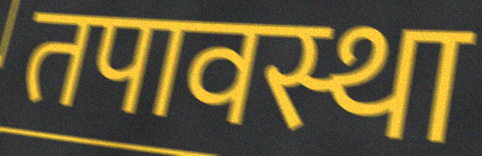
तपावस्था